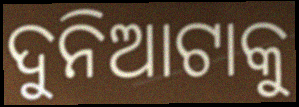
ଦୁନିଆଟାକୁ